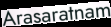
Arasaratnam